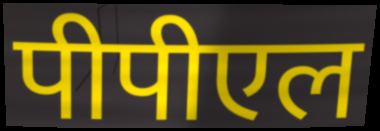
पीपीएल